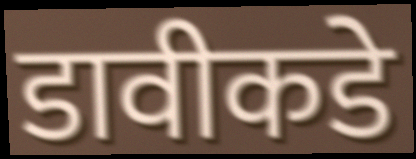
डावीकडे